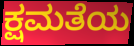
ಕ್ಷಮತೆಯ